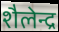
शैलेन्द्र